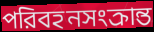
পরিবহনসংক্রান্ত